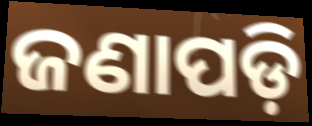
ଜଣାପଡ଼ି